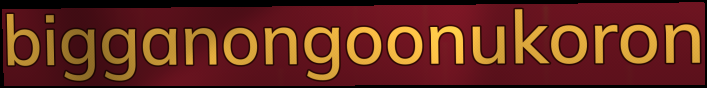
bigganongoonukoron